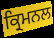
ਕ੍ਰਿਮਨਲ